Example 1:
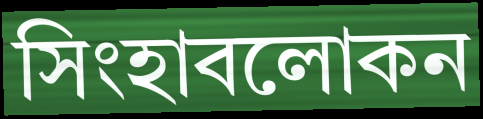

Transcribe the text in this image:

সিংহাবলোকন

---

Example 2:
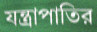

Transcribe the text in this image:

যন্ত্রাপাতির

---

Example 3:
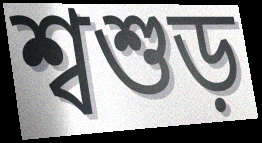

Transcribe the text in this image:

শ্বশুড়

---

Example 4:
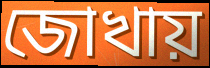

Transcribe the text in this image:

জোখায়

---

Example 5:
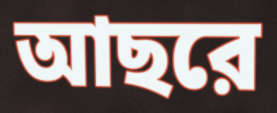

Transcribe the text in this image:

আছরে